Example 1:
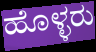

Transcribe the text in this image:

ಹೊಳ್ಳರು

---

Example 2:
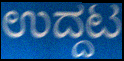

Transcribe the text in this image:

ಉದ್ದಟ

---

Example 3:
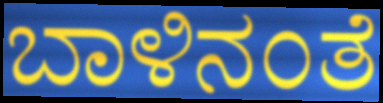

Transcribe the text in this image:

ಬಾಳಿನಂತೆ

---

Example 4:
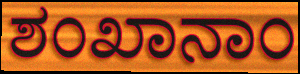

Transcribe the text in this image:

ಶಂಖಾನಾಂ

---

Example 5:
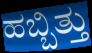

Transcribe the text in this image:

ಹಬ್ಬಿತ್ತು